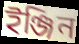
ইঞ্জিন